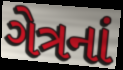
ગેત્રનાં